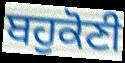
ਬਹੁਕੋਣੀ